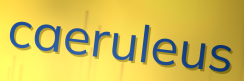
caeruleus